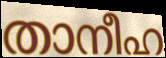
താനീഹ